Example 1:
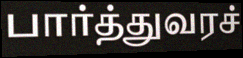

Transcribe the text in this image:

பார்த்துவரச்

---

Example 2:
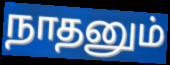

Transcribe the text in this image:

நாதனும்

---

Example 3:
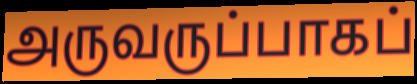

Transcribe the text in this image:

அருவருப்பாகப்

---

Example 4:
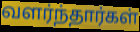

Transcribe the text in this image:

வளர்ந்தார்கள்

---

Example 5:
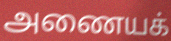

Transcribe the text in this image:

அணையக்